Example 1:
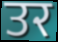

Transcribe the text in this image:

उर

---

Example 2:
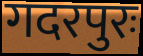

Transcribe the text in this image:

गदरपुरः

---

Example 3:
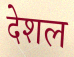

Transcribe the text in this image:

देशल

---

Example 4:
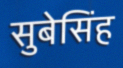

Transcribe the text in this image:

सुबेसिंह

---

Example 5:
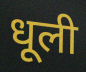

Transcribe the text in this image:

धूली